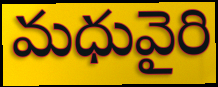
మధువైరి